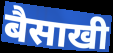
बैसाखी